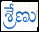
శ్రేణు